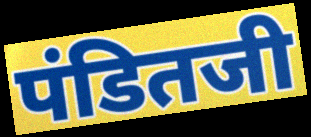
पंडितजी